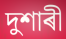
দুশাৰী